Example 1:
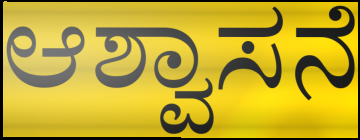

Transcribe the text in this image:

ಆಶ್ವಾಸನೆ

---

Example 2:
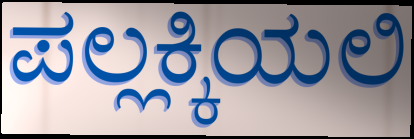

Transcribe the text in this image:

ಪಲ್ಲಕ್ಕಿಯಲಿ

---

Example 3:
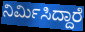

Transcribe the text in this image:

ನಿರ್ಮಿಸಿದ್ದಾರೆ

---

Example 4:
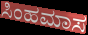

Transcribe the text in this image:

ಸಿಂಹಮಾಸ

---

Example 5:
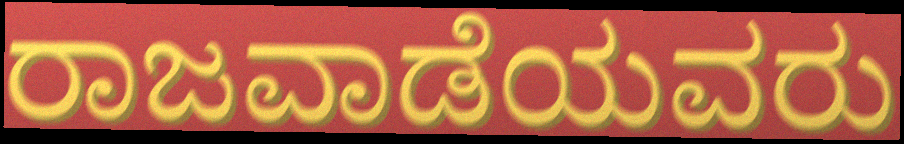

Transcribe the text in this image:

ರಾಜವಾಡೆಯವರು